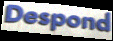
Despond